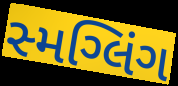
સ્મગ્લિંગ